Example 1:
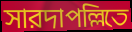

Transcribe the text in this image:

সারদাপল্লিতে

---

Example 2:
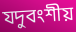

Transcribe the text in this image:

যদুবংশীয়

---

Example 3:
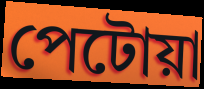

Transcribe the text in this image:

পেটোয়া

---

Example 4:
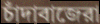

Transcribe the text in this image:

চাঁদাবাজেরা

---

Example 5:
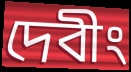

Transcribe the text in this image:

দেবীং